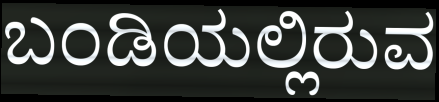
ಬಂಡಿಯಲ್ಲಿರುವ